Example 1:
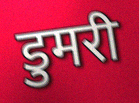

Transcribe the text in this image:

डुमरी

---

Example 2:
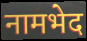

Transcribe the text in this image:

नामभेद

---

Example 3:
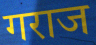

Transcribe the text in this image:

गराज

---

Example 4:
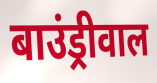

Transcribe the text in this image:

बाउंड्रीवाल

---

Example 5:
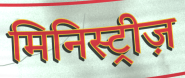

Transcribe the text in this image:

मिनिस्ट्रीज़